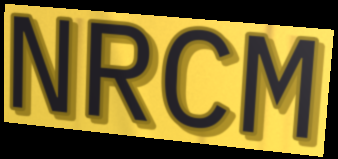
NRCM